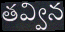
తవ్విన